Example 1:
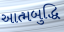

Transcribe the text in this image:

આત્મબુદ્ધિ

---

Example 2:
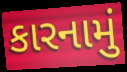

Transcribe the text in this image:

કારનામું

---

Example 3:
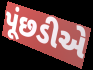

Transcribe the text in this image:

પૂંછડીએ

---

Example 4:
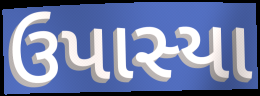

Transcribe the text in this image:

ઉપાસ્યા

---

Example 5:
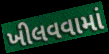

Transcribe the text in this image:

ખીલવવામાં